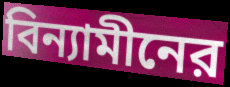
বিন্যামীনের